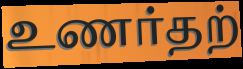
உணர்தற்